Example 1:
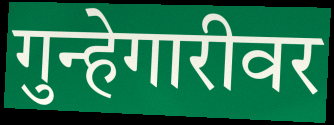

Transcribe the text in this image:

गुन्हेगारीवर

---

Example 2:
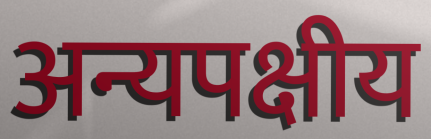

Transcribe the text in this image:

अन्यपक्षीय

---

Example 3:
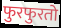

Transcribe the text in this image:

फुरफुरतो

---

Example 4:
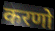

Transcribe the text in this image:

करणो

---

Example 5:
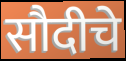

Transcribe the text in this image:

सौदीचे